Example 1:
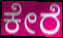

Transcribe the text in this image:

ಕೇರೆ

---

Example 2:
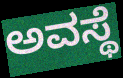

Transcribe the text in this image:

ಅವಸ್ಥೆ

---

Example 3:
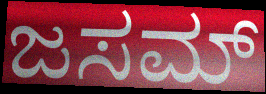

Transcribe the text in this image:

ಜಸಮ್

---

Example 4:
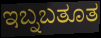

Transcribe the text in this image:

ಇಬ್ನಬತೂತ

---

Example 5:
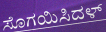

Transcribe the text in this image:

ಸೊಗಯಿಸಿದಳ್